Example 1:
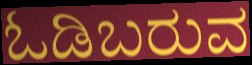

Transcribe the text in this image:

ಓಡಿಬರುವ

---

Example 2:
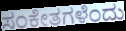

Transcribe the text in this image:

ಸಂಕೇತಗಳೆಂದು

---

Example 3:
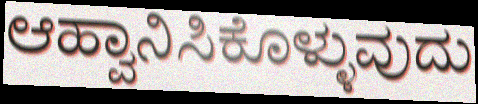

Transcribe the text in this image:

ಆಹ್ವಾನಿಸಿಕೊಳ್ಳುವುದು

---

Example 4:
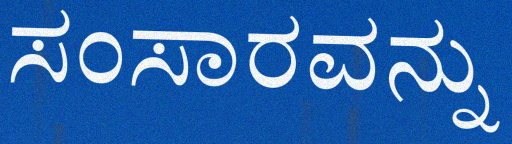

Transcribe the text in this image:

ಸಂಸಾರವನ್ನು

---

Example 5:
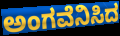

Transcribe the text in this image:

ಅಂಗವೆನಿಸಿದ